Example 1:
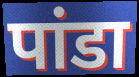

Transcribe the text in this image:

पांडा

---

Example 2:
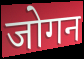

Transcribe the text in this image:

जोगन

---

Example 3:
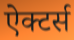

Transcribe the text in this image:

ऐक्टर्स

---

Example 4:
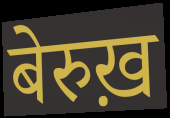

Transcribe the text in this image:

बेरुख़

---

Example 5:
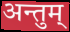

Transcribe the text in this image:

अन्तुम्